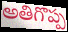
అతిగొప్ప